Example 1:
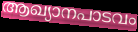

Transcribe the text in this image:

ആഖ്യാനപാടവം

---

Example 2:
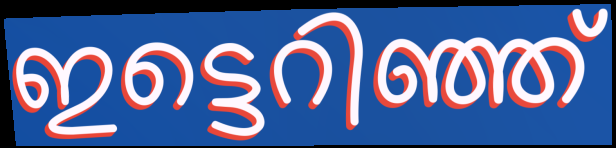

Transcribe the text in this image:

ഇട്ടെറിഞ്ഞ്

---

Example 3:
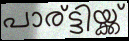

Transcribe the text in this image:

പാര്ട്ടിയ്ക്ക്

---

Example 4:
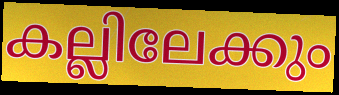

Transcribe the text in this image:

കല്ലിലേക്കും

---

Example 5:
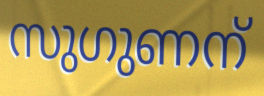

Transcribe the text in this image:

സുഗുണന്